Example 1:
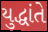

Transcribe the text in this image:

યુદ્ધાંતે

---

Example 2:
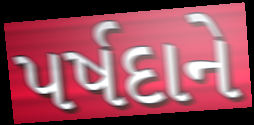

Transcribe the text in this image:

પર્ષદાને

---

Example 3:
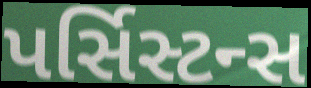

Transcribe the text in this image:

પર્સિસ્ટન્સ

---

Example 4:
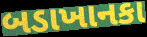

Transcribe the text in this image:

બડાખાનકા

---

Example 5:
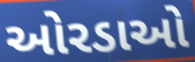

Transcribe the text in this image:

ઓરડાઓ